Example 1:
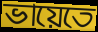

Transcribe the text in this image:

ভায়েতে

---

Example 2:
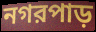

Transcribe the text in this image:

নগরপাড়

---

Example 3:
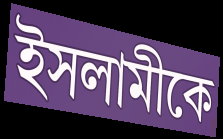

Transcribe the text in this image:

ইসলামীকে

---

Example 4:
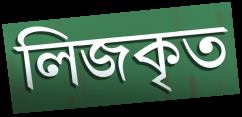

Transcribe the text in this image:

লিজকৃত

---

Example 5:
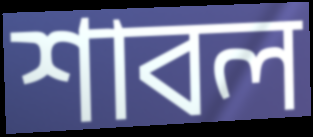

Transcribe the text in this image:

শাবল